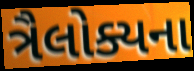
ત્રૈલોક્યના